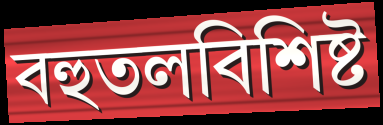
বহুতলবিশিষ্ট